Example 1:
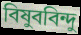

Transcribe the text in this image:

বিষুববিন্দু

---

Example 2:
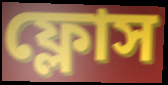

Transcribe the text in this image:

ফ্লোস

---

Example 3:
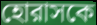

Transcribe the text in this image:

হোরাসকে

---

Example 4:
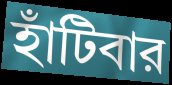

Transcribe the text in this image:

হাঁটিবার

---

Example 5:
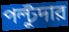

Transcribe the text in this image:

পল্টুদার